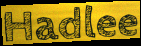
Hadlee